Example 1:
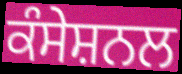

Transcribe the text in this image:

ਕੰਸੇਸ਼ਨਲ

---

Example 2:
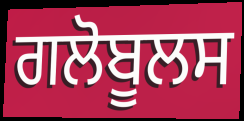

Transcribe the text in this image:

ਗਲੋਬੂਲਸ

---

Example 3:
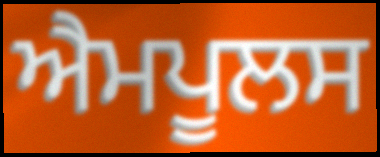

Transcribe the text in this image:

ਐਮਪੂਲਸ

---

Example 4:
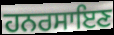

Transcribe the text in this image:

ਹਨਰਸਾਇਣ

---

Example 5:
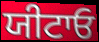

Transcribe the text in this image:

ਯੀਟਾਓ